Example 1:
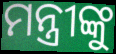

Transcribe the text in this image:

ମନ୍ତ୍ରୀଙ୍କୁ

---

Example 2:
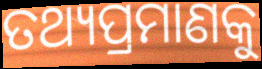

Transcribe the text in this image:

ତଥ୍ୟପ୍ରମାଣକୁ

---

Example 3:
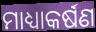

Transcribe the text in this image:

ମାଧ୍ୟାକର୍ଷଣ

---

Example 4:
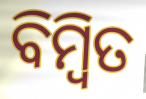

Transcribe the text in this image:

ବିମ୍ବିତ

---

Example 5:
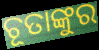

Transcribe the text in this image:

ଚୂତାଙ୍କୁର